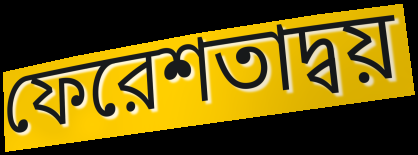
ফেরেশতাদ্বয়